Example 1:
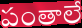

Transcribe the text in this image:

పంతాలే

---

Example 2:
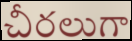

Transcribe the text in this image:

చీరలుగా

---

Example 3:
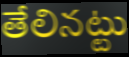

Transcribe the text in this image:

తేలినట్టు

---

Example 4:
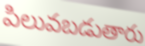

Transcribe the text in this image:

పిలువబడుతారు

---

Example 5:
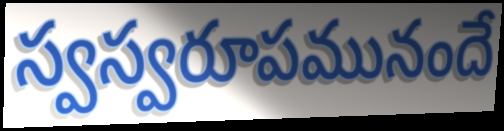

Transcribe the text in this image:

స్వస్వరూపమునందే